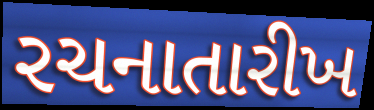
રચનાતારીખ